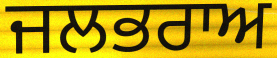
ਜਲਭਰਾਅ